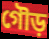
গৌড়